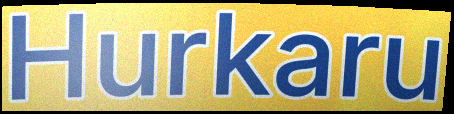
Hurkaru